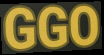
GGO